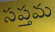
సప్తమ